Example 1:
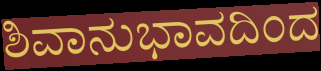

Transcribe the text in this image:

ಶಿವಾನುಭಾವದಿಂದ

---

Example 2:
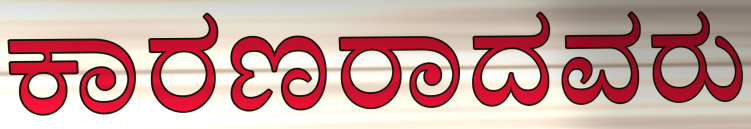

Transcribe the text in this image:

ಕಾರಣರಾದವರು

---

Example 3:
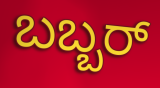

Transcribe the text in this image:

ಬಬ್ಬರ್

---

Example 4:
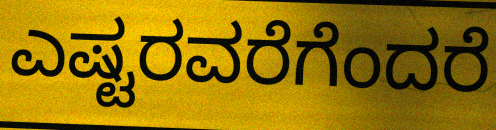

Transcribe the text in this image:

ಎಷ್ಟರವರೆಗೆಂದರೆ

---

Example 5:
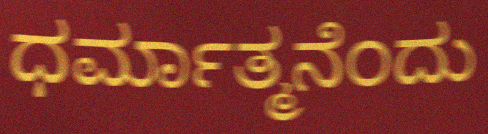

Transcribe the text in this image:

ಧರ್ಮಾತ್ಮನೆಂದು